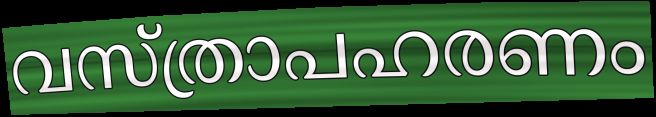
വസ്ത്രാപഹരണം